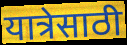
यात्रेसाठी